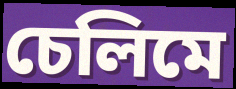
চেলিমে